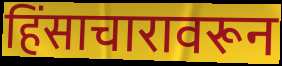
हिंसाचारावरून